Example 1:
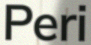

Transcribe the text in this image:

Peri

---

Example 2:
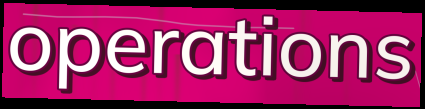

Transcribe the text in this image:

operations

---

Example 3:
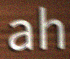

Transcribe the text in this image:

ah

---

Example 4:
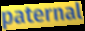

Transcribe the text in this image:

paternal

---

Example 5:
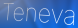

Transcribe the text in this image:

Teneva